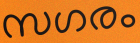
സഗരം